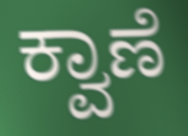
ಕ್ವಾಣೆ